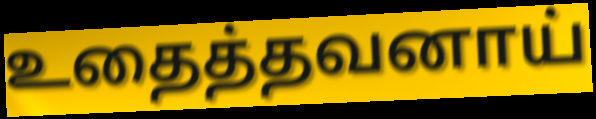
உதைத்தவனாய்